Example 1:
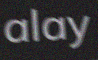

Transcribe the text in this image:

alay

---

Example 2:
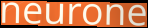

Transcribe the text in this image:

neurone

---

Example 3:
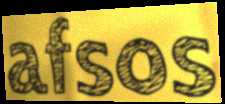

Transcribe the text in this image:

afsos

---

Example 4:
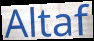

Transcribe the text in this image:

Altaf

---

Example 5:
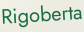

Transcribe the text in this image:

Rigoberta